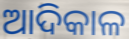
ଆଦିକାଳ